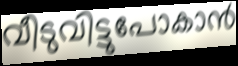
വീടുവിട്ടുപോകാൻ